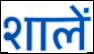
शालें